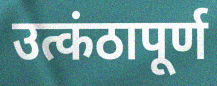
उत्कंठापूर्ण